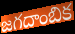
జగదాంబిక